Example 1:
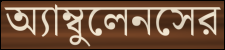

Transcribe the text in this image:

অ্যাম্বুলেনসের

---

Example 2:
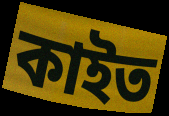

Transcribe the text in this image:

কাইত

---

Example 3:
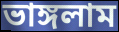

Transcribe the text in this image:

ভাঙ্গলাম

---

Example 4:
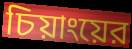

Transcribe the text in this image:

চিয়াংয়ের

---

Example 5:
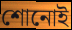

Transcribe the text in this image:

শোনোই